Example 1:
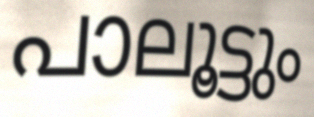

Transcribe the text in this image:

പാലൂട്ടും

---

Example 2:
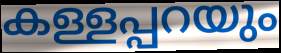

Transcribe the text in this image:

കള്ളപ്പറയും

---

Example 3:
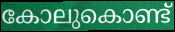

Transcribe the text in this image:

കോലുകൊണ്ട്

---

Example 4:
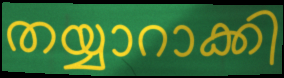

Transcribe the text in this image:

തയ്യാറാക്കി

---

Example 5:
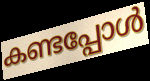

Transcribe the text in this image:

കണ്ടപ്പോൾ